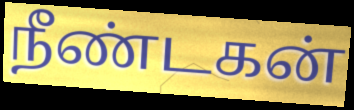
நீண்டகன்